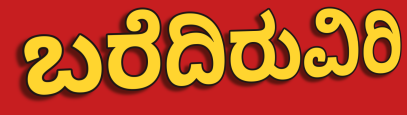
ಬರೆದಿರುವಿರಿ